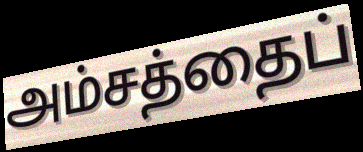
அம்சத்தைப்